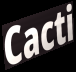
Cacti